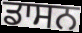
ਡਾਸਨ